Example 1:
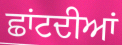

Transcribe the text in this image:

ਛਾਂਟਦੀਆਂ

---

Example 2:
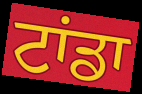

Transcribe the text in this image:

ਟਾਂਡਾ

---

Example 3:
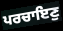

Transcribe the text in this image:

ਪਰਚਾਇਣੁ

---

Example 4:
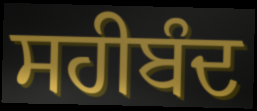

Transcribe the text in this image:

ਸਹੀਬੰਦ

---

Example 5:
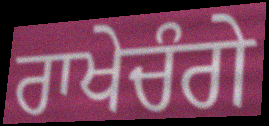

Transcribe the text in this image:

ਰਾਖੇਚੰਗੇ